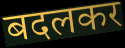
बदलकर